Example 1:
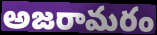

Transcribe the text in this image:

అజరామరం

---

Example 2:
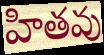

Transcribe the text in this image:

హితవు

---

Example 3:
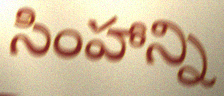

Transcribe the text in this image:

సింహాన్ని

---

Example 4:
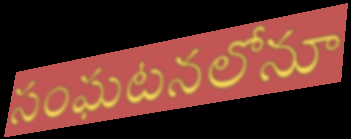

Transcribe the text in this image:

సంఘటనలోనూ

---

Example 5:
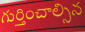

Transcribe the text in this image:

గుర్తించాల్సిన